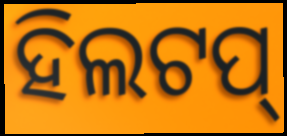
ହିଲଟପ୍